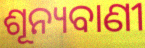
ଶୂନ୍ୟବାଣୀ